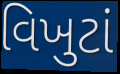
વિખુટાં